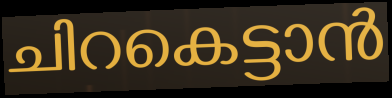
ചിറകെട്ടാൻ